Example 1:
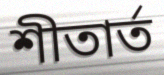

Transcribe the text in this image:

শীতাৰ্ত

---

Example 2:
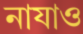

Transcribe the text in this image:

নাযাও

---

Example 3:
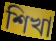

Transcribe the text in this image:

শিখা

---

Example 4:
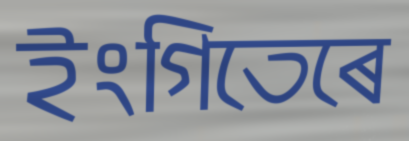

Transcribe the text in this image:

ইংগিতেৰে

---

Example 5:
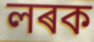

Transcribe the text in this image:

লৰক